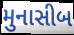
મુનાસીબ